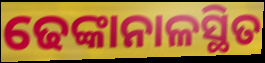
ଢେଙ୍କାନାଳସ୍ଥିତ